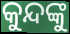
କୁନ୍ଦଙ୍କୁ